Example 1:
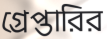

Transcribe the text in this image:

গ্রেপ্তারির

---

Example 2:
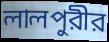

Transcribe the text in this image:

লালপুরীর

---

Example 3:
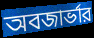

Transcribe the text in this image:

অবজার্ভার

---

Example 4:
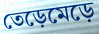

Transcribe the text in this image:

তেড়েমেড়ে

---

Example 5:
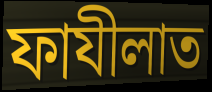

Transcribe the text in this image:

ফাযীলাত